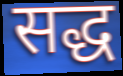
सद्ध